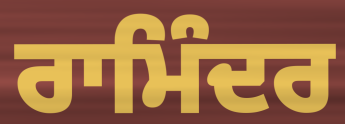
ਰਾਮਿੰਦਰ